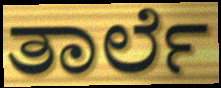
ತಾರ್ಲೆ